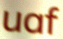
uaf